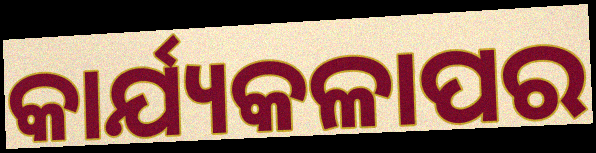
କାର୍ଯ୍ୟକଳାପର